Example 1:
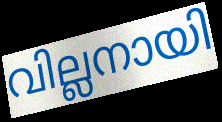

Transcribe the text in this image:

വില്ലനായി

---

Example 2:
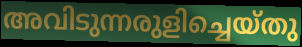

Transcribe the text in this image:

അവിടുന്നരുളിച്ചെയ്തു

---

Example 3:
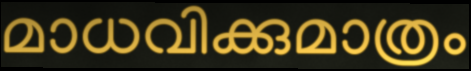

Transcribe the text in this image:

മാധവിക്കുമാത്രം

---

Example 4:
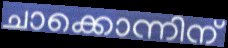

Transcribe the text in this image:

ചാക്കൊന്നിന്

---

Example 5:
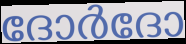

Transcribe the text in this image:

ദോർദോ